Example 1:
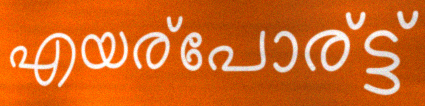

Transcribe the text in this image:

എയര്പോര്ട്ട്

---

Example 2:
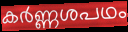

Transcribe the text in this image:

കർണ്ണശപഥം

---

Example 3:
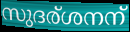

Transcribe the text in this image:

സുദര്ശനന്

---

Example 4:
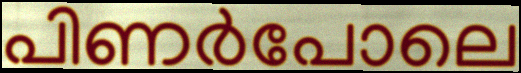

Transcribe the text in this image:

പിണർപോലെ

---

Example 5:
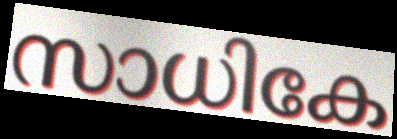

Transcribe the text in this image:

സാധികേ